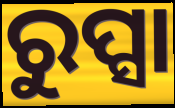
ରୁପ୍ସା